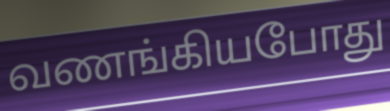
வணங்கியபோது